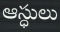
ఆస్ధులు